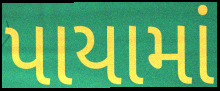
પાયામાં